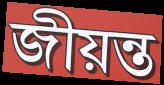
জীয়ন্ত